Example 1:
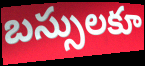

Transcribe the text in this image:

బస్సులకూ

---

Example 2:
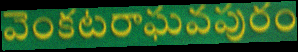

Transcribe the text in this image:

వెంకటరాఘవపురం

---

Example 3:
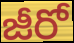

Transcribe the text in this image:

జీరో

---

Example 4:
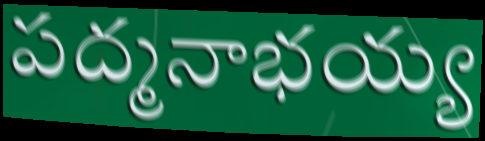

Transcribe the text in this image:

పద్మనాభయ్య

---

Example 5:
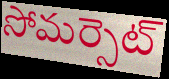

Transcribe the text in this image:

సోమర్సెట్